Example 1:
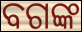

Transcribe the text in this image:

ବଗଙ୍କ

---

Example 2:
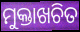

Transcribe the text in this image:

ମୁକ୍ତାଖଚିତ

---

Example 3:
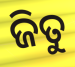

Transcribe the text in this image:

ଜିତୁ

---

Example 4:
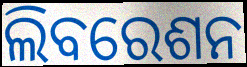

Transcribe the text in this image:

ଲିବରେଶନ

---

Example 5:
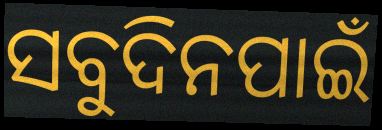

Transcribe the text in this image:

ସବୁଦିନପାଇଁ